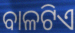
ବାଳଟିଏ